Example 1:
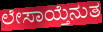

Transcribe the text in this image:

ಲೇಸಾಯ್ತೆನುತ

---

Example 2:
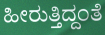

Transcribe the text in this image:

ಹೀರುತ್ತಿದ್ದಂತೆ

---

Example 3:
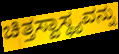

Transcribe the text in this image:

ಚಿತ್ತಸ್ವಾಸ್ಥ್ಯವನ್ನು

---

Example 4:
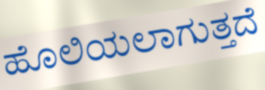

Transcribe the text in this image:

ಹೊಲಿಯಲಾಗುತ್ತದೆ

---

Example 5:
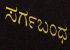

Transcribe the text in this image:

ಸರ್ಗಬಂಧ